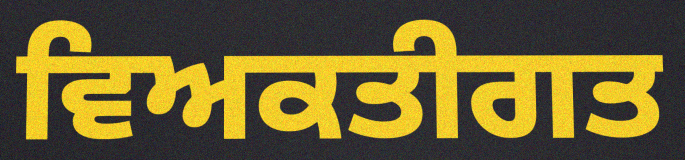
ਵਿਅਕਤੀਗਤ